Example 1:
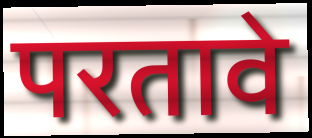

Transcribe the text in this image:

परतावे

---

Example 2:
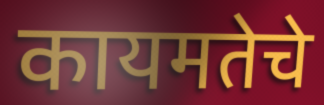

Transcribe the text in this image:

कायमतेचे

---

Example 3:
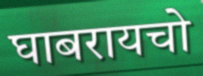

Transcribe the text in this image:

घाबरायचो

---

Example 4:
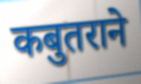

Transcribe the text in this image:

कबुतराने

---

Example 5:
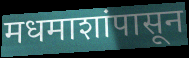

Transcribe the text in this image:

मधमाशांपासून